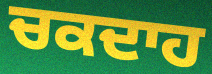
ਚਕਦਾਹ